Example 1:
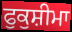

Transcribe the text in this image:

ਫੁਕੁਸ਼ੀਮਾ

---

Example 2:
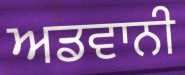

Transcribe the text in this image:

ਅਡਵਾਨੀ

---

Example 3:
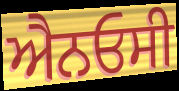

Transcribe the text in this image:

ਐਨਓਸੀ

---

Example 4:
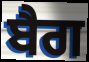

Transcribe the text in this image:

ਬੈਗ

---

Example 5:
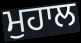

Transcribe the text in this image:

ਮੁਹਾਲ